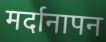
मर्दानापन